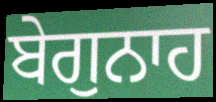
ਬੇਗੁਨਾਹ